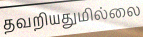
தவறியதுமில்லை